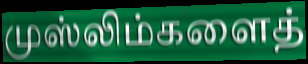
முஸ்லிம்களைத்